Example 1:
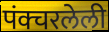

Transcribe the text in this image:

पंक्चरलेली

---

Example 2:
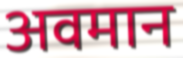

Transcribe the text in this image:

अवमान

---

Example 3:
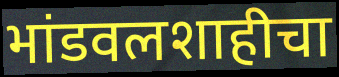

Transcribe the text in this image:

भांडवलशाहीचा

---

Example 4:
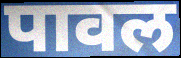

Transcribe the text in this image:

पावल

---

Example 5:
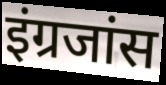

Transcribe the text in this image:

इंग्रजांस